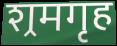
श्रमगृह